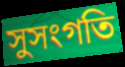
সুসংগতি